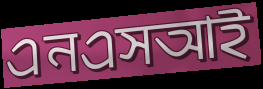
এনএসআই